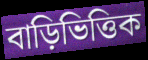
বাড়িভিত্তিক